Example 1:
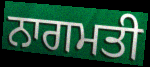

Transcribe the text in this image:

ਨਾਗਮਤੀ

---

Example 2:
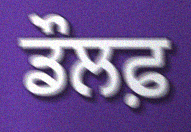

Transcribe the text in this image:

ਡੌਲਫ਼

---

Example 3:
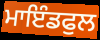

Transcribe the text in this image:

ਮਾਇੰਡਫੁਲ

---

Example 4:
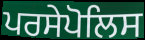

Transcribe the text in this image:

ਪਰਸੇਪੋਲਿਸ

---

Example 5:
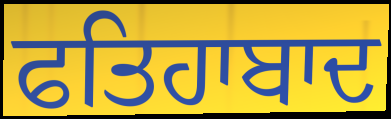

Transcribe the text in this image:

ਫਤਿਹਾਬਾਦ